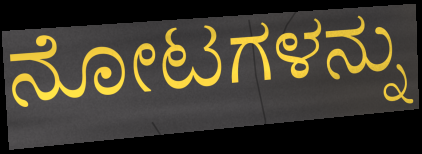
ನೋಟಗಳನ್ನು